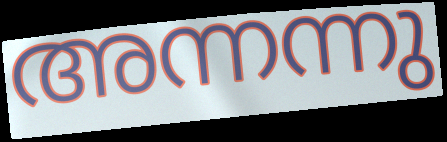
അന്നന്നു